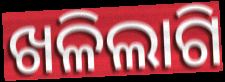
ଖଳିଲାଗି